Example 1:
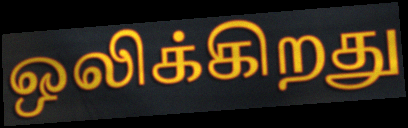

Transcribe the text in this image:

ஒலிக்கிறது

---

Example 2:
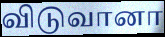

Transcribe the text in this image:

விடுவானா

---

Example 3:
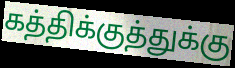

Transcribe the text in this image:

கத்திக்குத்துக்கு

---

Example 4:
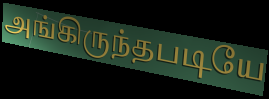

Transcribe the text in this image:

அங்கிருந்தபடியே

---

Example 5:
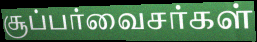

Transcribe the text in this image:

சூப்பர்வைசர்கள்